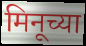
मिनूच्या